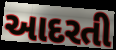
આદરતી